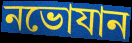
নভোযান